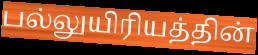
பல்லுயிரியத்தின்